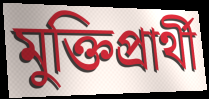
মুক্তিপ্রার্থী